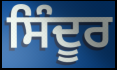
ਸਿੰਦੂਰ